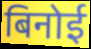
बिनोई